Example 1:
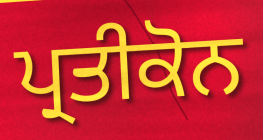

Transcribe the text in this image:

ਪ੍ਰਤੀਕੋਨ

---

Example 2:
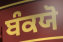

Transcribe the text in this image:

ਬੰਕਯੋ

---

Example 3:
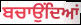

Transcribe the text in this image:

ਬਚਾਉਂਦਿਆਂ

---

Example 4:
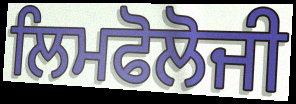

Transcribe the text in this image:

ਲਿਮਫੋਲੋਜੀ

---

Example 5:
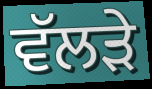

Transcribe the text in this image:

ਵੱਲੜੇ